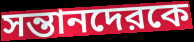
সন্তানদেরকে